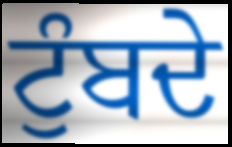
ਟੁੰਬਦੇ